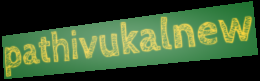
pathivukalnew